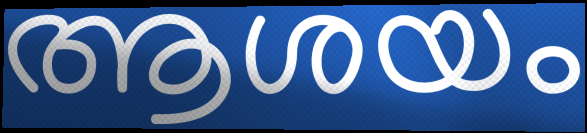
ആശയം